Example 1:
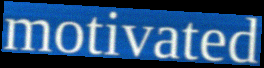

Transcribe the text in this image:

motivated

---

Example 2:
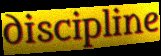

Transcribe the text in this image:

discipline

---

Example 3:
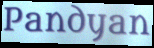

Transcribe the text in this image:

Pandyan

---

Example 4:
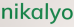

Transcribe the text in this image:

nikalyo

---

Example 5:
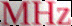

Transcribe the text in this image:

MHz